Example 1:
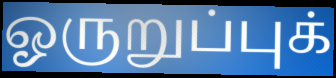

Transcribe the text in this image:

ஓருறுப்புக்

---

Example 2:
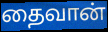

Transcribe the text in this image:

தைவான்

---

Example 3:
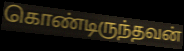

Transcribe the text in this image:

கொண்டிருந்தவன்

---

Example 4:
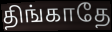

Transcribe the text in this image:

திங்காதே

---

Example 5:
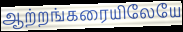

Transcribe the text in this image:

ஆற்றங்கரையிலேயே